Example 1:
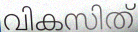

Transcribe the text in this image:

വികസിത്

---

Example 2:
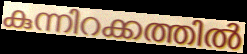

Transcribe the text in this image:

കുന്നിറക്കത്തിൽ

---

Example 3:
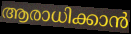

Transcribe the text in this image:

ആരാധിക്കാൻ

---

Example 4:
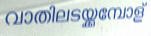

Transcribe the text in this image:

വാതിലടയ്ക്കുമ്പോള്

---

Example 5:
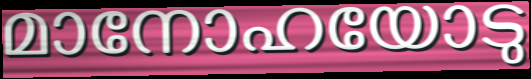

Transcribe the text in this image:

മാനോഹയോടു